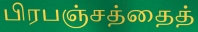
பிரபஞ்சத்தைத்